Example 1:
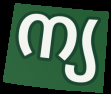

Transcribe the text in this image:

ന്യ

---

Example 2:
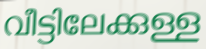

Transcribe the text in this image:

വീട്ടിലേക്കുള്ള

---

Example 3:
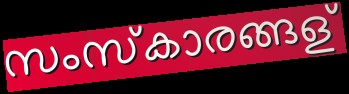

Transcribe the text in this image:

സംസ്കാരങ്ങള്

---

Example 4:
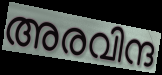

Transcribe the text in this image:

അരവിന്ദ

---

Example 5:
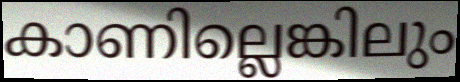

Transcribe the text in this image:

കാണില്ലെങ്കിലും